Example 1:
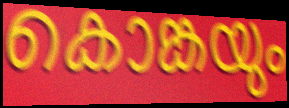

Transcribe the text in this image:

കൊങ്കയും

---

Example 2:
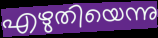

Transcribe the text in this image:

എഴുതിയെന്നു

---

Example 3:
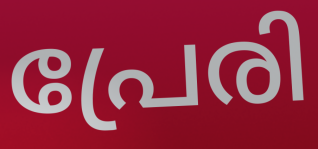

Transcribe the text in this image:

പ്രേരി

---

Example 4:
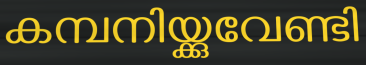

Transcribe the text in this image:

കമ്പനിയ്ക്കുവേണ്ടി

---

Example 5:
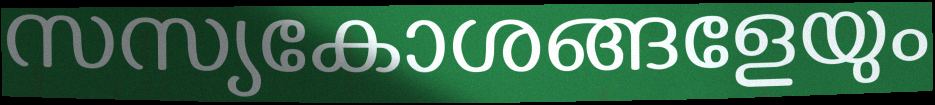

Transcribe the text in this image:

സസ്യകോശങ്ങളേയും